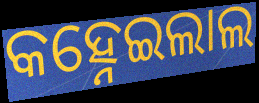
କହ୍ନେଇଲାଲ